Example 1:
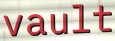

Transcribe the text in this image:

vault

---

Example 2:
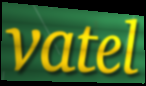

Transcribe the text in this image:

vatel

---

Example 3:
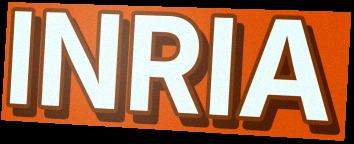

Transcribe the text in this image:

INRIA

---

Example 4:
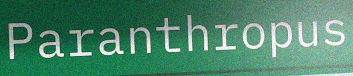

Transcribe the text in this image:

Paranthropus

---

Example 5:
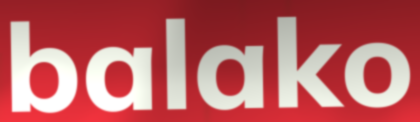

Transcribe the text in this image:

balako